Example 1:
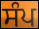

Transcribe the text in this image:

ਸੰਪ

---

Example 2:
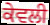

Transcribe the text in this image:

ਕੇਵਲੀ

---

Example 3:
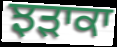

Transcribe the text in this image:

ਝੜਾਕਾ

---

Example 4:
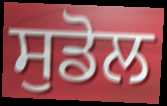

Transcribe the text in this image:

ਸੁਡੋਲ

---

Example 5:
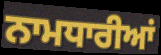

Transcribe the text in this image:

ਨਾਮਧਾਰੀਆਂ